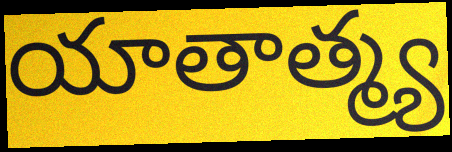
యాతాత్మ్య